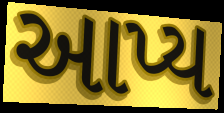
આપ્ય